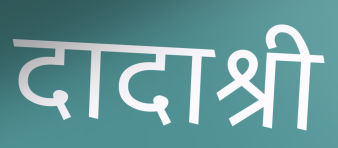
दादाश्री